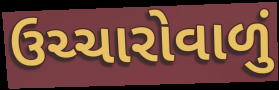
ઉચ્ચારોવાળું